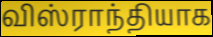
விஸ்ராந்தியாக